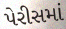
પેરીસમાં